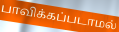
பாவிக்கப்படாமல்